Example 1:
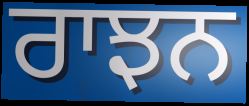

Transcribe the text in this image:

ਰਾਝਨ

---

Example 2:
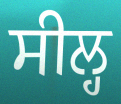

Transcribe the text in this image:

ਸੀਲ੍ਹ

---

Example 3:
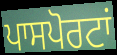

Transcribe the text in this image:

ਪਾਸਪੋਰਟਾਂ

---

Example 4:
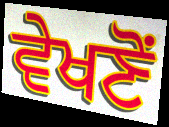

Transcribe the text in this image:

ਵੇਖਣੋਂ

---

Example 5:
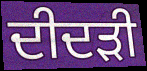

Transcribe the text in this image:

ਦੀਦੜੀ